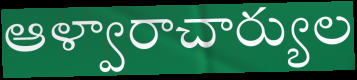
ఆళ్వారాచార్యుల